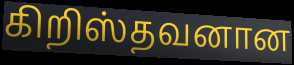
கிறிஸ்தவனான